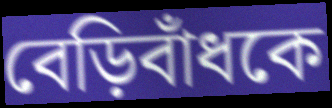
বেড়িবাঁধকে